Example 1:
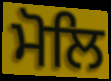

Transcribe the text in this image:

ਮੋਲਿ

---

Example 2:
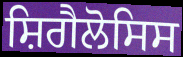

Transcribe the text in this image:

ਸ਼ਿਗੈਲੋਸਿਸ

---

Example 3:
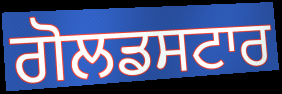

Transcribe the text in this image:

ਗੋਲਡਸਟਾਰ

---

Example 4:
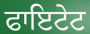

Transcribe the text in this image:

ਫਾਇਟੇਟ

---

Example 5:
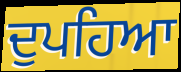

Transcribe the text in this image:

ਦੁਪਹਿਆ